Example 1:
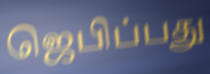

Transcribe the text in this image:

ஜெபிப்பது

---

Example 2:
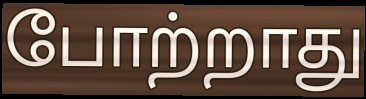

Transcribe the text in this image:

போற்றாது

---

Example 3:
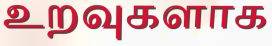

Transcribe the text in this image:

உறவுகளாக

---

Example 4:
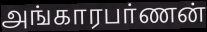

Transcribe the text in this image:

அங்காரபர்ணன்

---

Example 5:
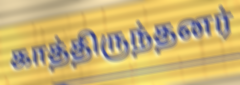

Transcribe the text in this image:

காத்திருந்தனர்